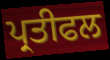
ਪ੍ਰਤੀਫਲ